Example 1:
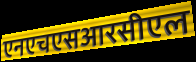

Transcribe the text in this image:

एनएचएसआरसीएल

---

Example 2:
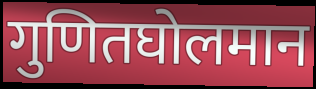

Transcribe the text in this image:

गुणितघोलमान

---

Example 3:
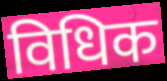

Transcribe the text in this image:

विधिक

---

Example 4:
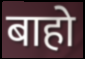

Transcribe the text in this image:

बाहो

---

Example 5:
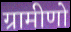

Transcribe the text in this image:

ग्रामीणो